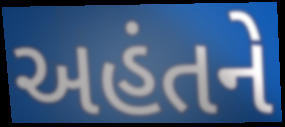
અહંતને